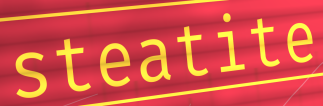
steatite